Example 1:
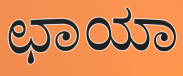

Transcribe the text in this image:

ಛಾಯಾ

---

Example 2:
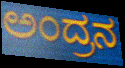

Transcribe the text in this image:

ಅಂದ್ರನ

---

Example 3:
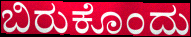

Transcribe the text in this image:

ಬಿರುಕೊಂದು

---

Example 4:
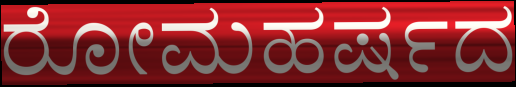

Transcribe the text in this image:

ರೋಮಹರ್ಷದ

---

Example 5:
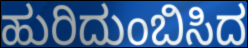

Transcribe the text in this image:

ಹುರಿದುಂಬಿಸಿದ